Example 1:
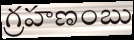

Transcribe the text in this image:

గ్రహణంబు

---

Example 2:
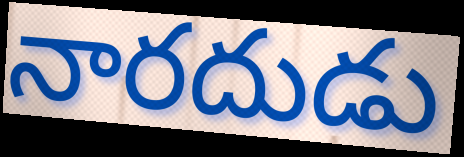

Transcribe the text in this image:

నారదుడు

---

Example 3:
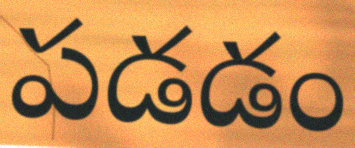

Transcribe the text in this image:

పడడం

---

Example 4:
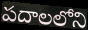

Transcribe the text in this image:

పదాలలోని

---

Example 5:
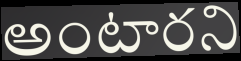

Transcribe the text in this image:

అంటారని